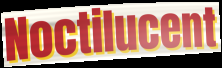
Noctilucent